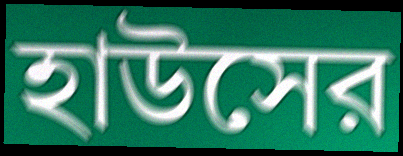
হাউসের